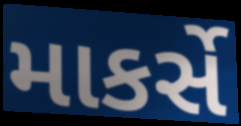
માકર્સે